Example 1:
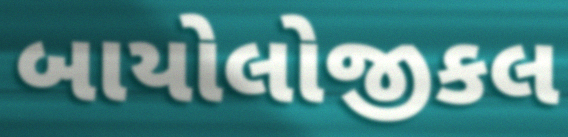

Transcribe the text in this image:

બાયોલોજીકલ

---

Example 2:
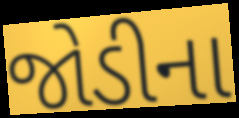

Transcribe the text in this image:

જોડીના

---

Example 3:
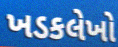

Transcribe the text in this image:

ખડકલેખો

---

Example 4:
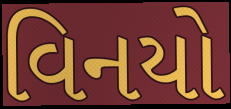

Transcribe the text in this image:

વિનયો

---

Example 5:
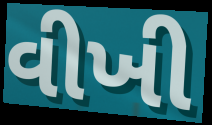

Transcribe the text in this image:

વીખી